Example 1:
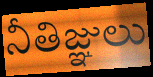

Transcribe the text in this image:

నీతిజ్ఞులు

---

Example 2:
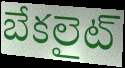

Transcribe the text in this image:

బేకలైట్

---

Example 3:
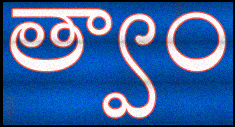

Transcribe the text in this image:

త్వాం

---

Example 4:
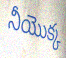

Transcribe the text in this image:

నీయొక్క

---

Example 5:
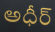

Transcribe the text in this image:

అధీర్